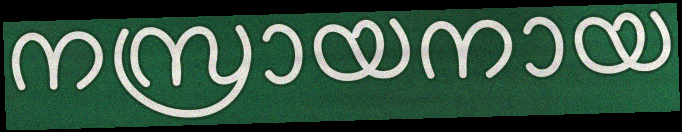
നസ്രായനായ